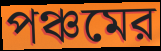
পঞ্চমের